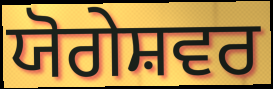
ਯੋਗੇਸ਼ਵਰ